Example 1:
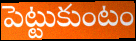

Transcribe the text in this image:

పెట్టుకుంటం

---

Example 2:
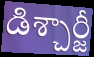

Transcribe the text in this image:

డిశ్చార్జీ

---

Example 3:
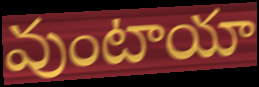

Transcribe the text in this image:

వుంటాయా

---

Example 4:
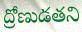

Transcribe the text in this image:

ద్రోణుడతని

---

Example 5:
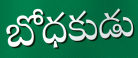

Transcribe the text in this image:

బోధకుడు